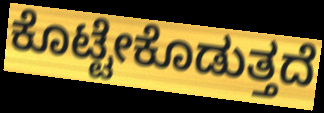
ಕೊಟ್ಟೇಕೊಡುತ್ತದೆ